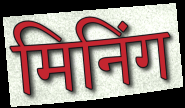
मिनिंग